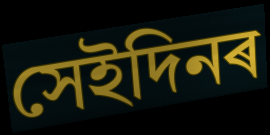
সেইদিনৰ